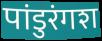
पांडुरंगश